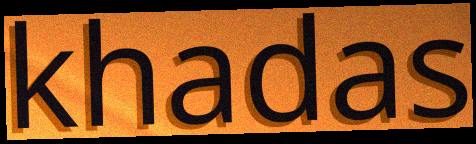
khadas